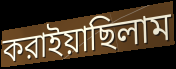
করাইয়াছিলাম